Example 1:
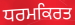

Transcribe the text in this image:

ਧਰਮਕਿਰਤ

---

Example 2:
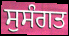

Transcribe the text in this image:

ਸੁਸੰਗਤ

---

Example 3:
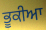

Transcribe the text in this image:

ਭੂਕੀਆ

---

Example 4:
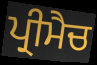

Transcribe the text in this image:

ਪ੍ਰੀਮੈਚ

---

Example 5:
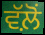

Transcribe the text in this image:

ਵੱਲ਼ੋਂ